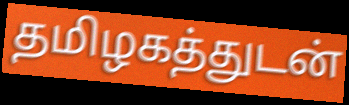
தமிழகத்துடன்